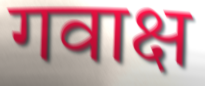
गवाक्ष